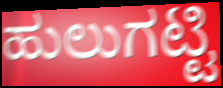
ಹುಲುಗಟ್ಟಿ